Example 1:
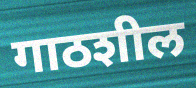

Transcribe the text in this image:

गाठशील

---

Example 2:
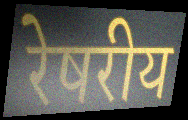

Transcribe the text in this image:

रेषरीय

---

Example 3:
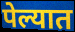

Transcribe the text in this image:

पेल्यात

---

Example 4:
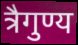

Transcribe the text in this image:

त्रैगुण्य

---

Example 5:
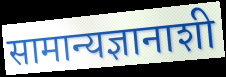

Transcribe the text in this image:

सामान्यज्ञानाशी